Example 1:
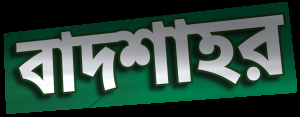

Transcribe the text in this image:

বাদশাহর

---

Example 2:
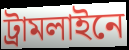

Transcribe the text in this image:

ট্রামলাইনে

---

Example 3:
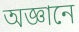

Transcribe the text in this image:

অজ্ঞানে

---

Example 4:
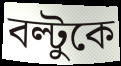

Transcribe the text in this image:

বল্টুকে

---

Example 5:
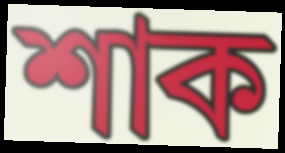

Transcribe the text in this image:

শাক